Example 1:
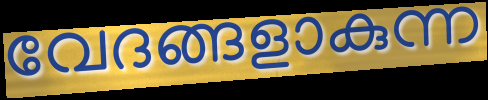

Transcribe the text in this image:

വേദങ്ങളാകുന്ന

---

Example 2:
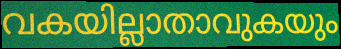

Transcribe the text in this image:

വകയില്ലാതാവുകയും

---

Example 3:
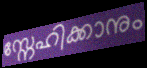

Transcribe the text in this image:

സ്നേഹിക്കാനും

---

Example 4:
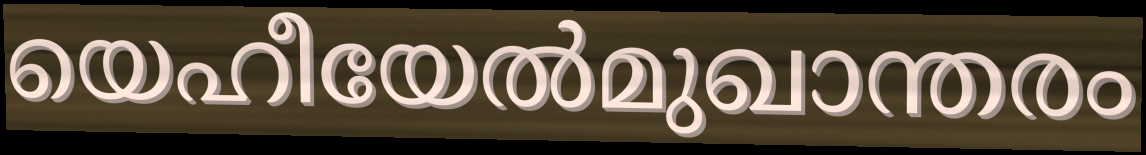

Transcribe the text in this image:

യെഹീയേൽമുഖാന്തരം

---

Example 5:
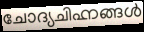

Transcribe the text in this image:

ചോദ്യചിഹ്നങ്ങൾ